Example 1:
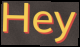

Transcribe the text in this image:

Hey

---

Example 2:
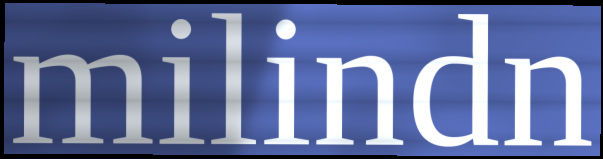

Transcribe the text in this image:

milindn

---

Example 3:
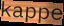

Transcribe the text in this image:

kappe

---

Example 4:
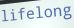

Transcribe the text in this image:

lifelong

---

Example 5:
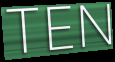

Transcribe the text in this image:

TEN